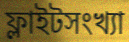
ফ্লাইটসংখ্যা